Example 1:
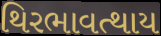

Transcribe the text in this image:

થિરભાવત્થાય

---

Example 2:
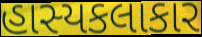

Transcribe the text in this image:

હાસ્યકલાકાર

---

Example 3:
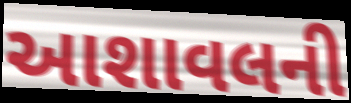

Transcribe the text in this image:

આશાવલની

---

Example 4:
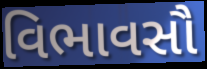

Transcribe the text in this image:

વિભાવસૌ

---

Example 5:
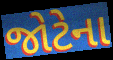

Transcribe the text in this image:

જોટેના